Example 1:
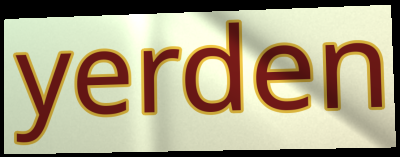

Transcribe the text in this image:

yerden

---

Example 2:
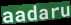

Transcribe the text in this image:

aadaru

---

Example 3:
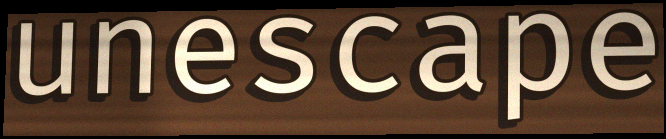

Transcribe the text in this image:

unescape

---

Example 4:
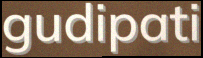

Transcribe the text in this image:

gudipati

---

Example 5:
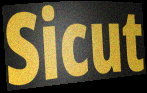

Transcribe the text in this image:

Sicut